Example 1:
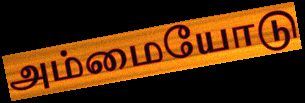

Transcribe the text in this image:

அம்மையோடு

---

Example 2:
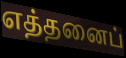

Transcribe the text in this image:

எத்தனைப்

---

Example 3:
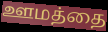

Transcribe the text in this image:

ஊமத்தை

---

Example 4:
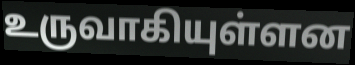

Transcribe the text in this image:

உருவாகியுள்ளன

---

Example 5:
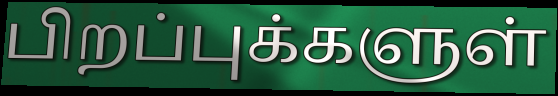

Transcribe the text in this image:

பிறப்புக்களுள்